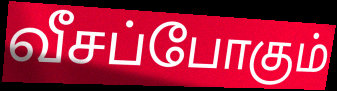
வீசப்போகும்